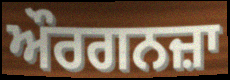
ਔਰਗਨਜ਼ਾ